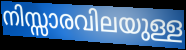
നിസ്സാരവിലയുള്ള